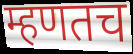
म्हणतच